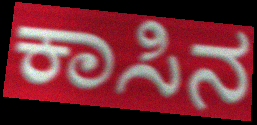
ಕಾಸಿನ